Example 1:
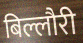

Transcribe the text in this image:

बिल्लौरी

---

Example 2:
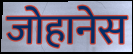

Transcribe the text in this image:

जोहानेस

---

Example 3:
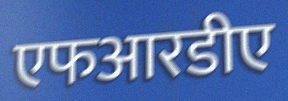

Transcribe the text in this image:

एफआरडीए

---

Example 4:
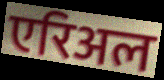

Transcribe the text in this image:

एरिअल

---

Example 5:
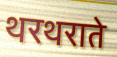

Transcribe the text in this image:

थरथराते